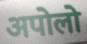
अपोलो